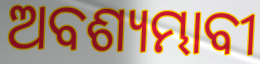
ଅବଶ୍ୟମ୍ଭାବୀ